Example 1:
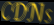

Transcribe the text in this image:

CDNs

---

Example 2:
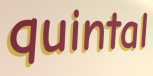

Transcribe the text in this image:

quintal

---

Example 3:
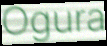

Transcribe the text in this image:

Ogura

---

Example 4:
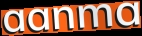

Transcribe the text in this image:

aanma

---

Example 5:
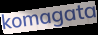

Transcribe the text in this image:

komagata